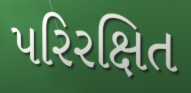
પરિરક્ષિત